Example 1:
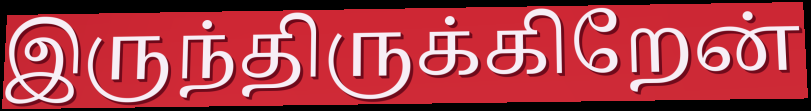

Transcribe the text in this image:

இருந்திருக்கிறேன்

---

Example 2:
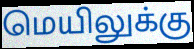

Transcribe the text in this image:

மெயிலுக்கு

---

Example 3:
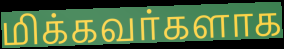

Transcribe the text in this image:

மிக்கவர்களாக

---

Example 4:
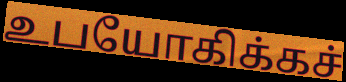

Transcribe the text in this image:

உபயோகிக்கச்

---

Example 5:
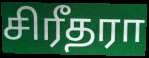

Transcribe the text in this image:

சிரீதரா